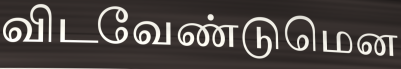
விடவேண்டுமென